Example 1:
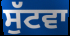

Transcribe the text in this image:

ਸੁੱਟਵਾ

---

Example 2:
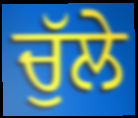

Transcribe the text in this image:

ਚੁੱਲੇ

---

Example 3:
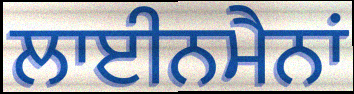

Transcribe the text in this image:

ਲਾਈਨਮੈਨਾਂ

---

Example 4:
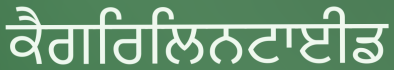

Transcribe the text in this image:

ਕੈਗਰਿਲਿਨਟਾਈਡ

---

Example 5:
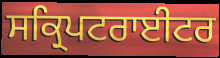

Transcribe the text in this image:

ਸਕ੍ਰਿਪਟਰਾਈਟਰ